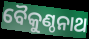
ବୈକୁଣ୍ଠନାଥ